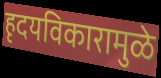
हृदयविकारामुळे